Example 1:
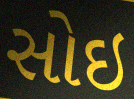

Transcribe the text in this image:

સોઇ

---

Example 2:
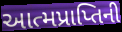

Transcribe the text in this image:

આત્મપ્રાપ્તિની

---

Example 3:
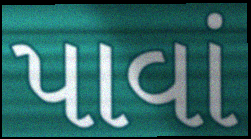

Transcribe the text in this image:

પાવાં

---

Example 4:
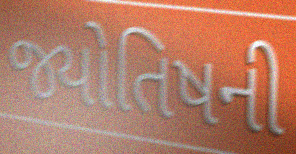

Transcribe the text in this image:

જ્યોતિષની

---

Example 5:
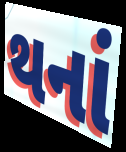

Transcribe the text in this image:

થનાં